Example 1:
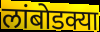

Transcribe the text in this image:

लांबोडक्या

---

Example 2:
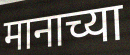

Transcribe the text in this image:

मानाच्या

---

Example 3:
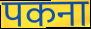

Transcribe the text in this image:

पकना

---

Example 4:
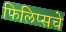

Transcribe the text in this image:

फिलिप्सचे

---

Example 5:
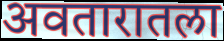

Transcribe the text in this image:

अवतारातला